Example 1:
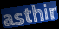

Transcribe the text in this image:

asthir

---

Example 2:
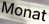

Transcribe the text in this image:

Monat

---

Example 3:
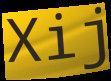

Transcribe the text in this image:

Xij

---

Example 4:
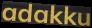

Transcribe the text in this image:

adakku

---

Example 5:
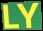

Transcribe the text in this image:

LY